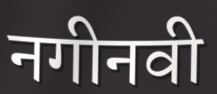
नगीनवी